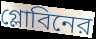
গ্লোবিনের